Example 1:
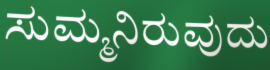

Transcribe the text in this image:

ಸುಮ್ಮನಿರುವುದು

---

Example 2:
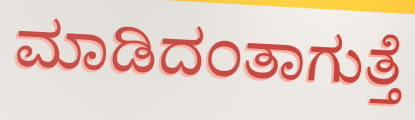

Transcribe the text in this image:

ಮಾಡಿದಂತಾಗುತ್ತೆ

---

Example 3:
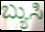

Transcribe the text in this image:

ಬ್ಯುಸಿ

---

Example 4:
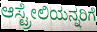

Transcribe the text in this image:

ಆಸ್ಟ್ರೇಲಿಯನ್ನರಿಗೆ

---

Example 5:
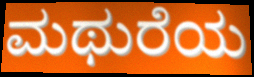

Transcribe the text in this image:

ಮಥುರೆಯ